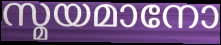
സ്മയമാനോ